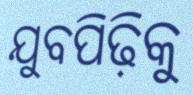
ଯୁବପିଢ଼ିକୁ